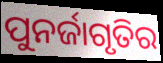
ପୁନର୍ଜାଗୃତିର